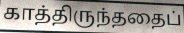
காத்திருந்ததைப்